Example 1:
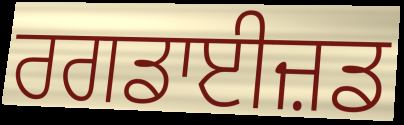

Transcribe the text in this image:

ਰਗਡਾਈਜ਼ਡ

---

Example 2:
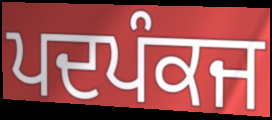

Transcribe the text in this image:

ਪਦਪੰਕਜ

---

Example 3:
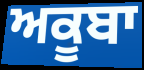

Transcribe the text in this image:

ਅਕੂਬਾ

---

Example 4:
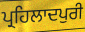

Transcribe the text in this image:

ਪ੍ਰਹਿਲਾਦਪੁਰੀ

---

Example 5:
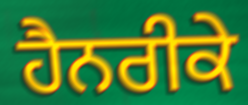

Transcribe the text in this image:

ਹੈਨਰੀਕੇ